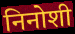
निनोशी